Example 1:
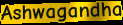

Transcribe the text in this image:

Ashwagandha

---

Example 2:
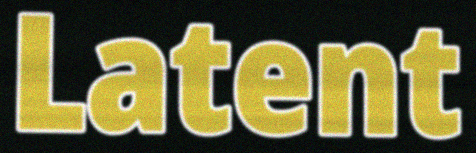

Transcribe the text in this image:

Latent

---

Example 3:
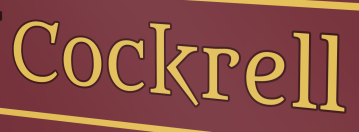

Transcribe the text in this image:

Cockrell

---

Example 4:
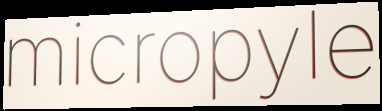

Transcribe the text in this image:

micropyle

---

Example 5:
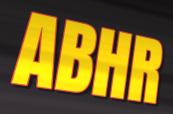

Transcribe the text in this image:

ABHR